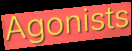
Agonists